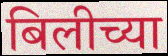
बिलीच्या